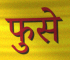
फुसे